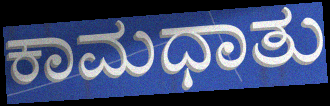
ಕಾಮಧಾತು